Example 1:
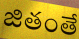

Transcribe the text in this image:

జితంతే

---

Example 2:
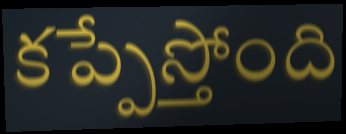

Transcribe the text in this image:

కప్పేస్తోంది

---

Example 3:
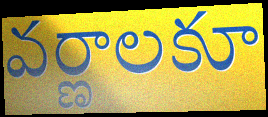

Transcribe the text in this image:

వర్ణాలకూ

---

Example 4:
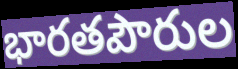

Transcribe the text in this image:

భారతపౌరుల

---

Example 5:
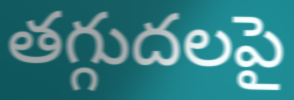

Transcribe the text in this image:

తగ్గుదలపై